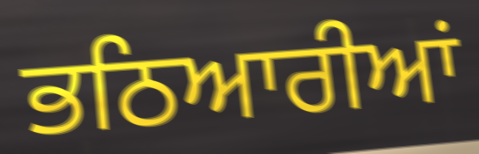
ਭਠਿਆਰੀਆਂ